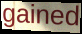
gained